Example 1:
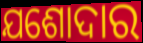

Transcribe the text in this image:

ଯଶୋଦାର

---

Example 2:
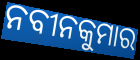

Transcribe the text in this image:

ନବୀନକୁମାର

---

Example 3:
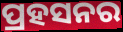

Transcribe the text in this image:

ପ୍ରହସନର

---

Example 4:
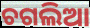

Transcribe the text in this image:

ଚଗଲିଆ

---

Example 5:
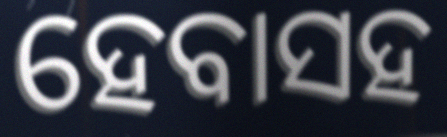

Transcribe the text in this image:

ହେବାସହ